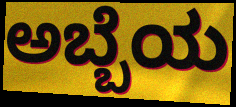
ಅಬ್ಬೆಯ